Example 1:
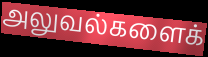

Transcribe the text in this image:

அலுவல்களைக்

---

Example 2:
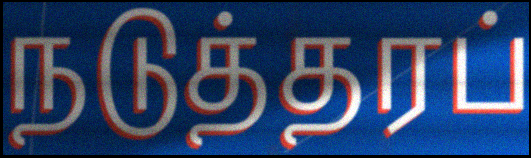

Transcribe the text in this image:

நடுத்தரப்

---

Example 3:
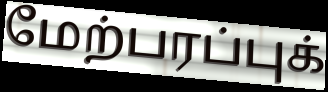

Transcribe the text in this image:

மேற்பரப்புக்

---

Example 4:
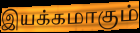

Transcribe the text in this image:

இயக்கமாகும்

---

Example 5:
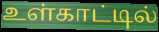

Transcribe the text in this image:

உள்காட்டில்